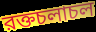
রক্তচলাচল